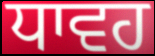
ਧਾਵਹ